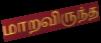
மாறவிருந்த